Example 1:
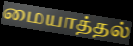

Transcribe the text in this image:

மையாத்தல்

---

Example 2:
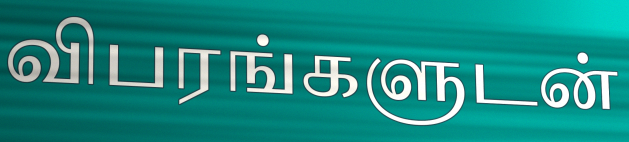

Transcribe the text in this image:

விபரங்களுடன்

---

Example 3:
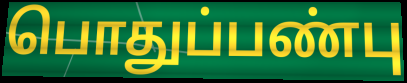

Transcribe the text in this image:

பொதுப்பண்பு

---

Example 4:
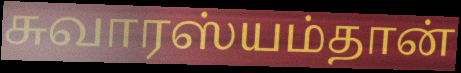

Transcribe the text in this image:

சுவாரஸ்யம்தான்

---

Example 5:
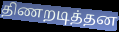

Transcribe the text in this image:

திணறடித்தன